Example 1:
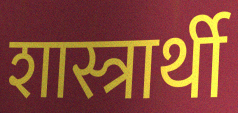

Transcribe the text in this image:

शास्त्रार्थी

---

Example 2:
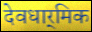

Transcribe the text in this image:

देवधार्मिक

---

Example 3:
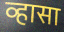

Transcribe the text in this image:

व्हासा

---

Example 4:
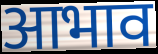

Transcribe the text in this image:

आभाव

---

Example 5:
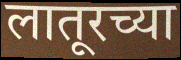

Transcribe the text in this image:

लातूरच्या